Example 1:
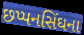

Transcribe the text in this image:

છપ્પનસિંઘના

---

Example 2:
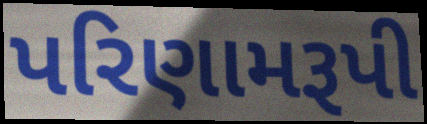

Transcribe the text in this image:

પરિણામરૂપી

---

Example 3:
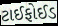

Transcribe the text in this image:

ટાઈફોઈડ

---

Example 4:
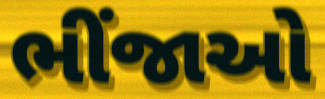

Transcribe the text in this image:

ભીંજાઓ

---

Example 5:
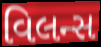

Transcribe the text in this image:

વિલન્સ